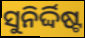
ସୁନିର୍ଦ୍ଦିଷ୍ଟ